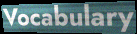
Vocabulary